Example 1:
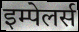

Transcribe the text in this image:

इम्पेलर्स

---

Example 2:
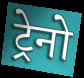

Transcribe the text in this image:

ट्रेनो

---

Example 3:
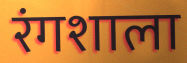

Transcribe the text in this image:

रंगशाला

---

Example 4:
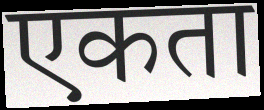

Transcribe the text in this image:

एकता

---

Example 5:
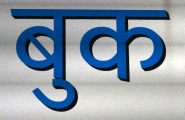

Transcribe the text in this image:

बुक